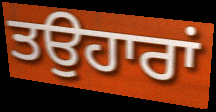
ਤਉਹਾਰਾਂ